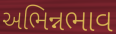
અભિન્નભાવ